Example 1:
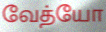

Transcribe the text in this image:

வேத்யோ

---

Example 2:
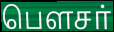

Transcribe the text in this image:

பௌசர்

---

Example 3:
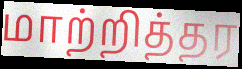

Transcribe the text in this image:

மாற்றித்தர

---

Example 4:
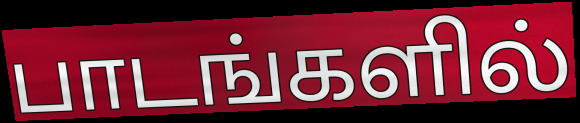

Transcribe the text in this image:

பாடங்களில்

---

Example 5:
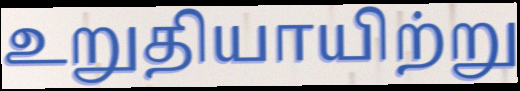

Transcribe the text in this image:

உறுதியாயிற்று